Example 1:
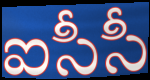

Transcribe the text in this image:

ఐసీసీ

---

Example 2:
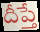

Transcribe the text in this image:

దీప్తే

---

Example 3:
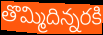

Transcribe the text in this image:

తొమ్మిదిన్నరకి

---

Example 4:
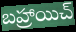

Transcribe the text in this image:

బహ్రాయిచ్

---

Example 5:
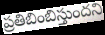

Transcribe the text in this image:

ప్రతిబింబిస్తుందని